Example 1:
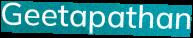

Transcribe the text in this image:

Geetapathan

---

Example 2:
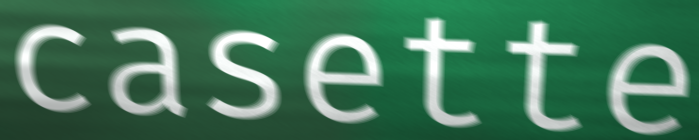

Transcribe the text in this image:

casette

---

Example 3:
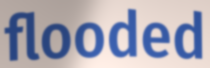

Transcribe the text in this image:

flooded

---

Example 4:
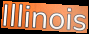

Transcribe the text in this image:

Illinois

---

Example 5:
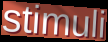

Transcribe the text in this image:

stimuli